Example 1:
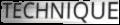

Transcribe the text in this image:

TECHNIQUE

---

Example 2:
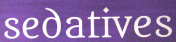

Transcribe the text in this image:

sedatives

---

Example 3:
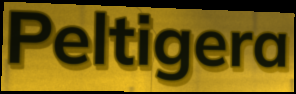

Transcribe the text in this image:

Peltigera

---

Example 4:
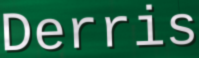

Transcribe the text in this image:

Derris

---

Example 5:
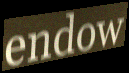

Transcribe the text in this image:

endow